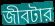
জীবটার